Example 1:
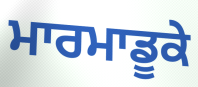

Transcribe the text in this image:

ਮਾਰਮਾਡੂਕੇ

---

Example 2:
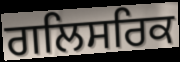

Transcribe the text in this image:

ਗਲਿਸਰਿਕ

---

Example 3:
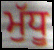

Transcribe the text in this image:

ਮੁੱਧੂ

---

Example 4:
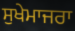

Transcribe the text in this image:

ਸੁਖੇਮਾਜਰਾ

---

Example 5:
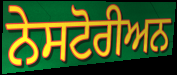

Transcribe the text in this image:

ਨੇਸਟੋਰੀਅਨ